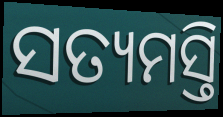
ସତ୍ୟମସ୍ତି